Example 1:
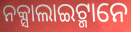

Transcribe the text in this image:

ନକ୍ସାଲାଇଟ୍ମାନେ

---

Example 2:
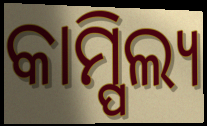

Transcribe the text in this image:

କାମ୍ପିଲ୍ୟ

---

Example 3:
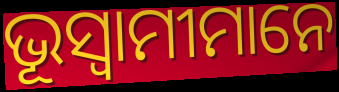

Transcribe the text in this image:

ଭୂସ୍ୱାମୀମାନେ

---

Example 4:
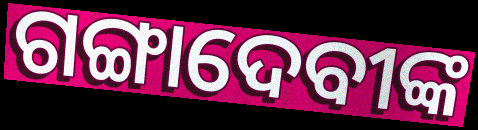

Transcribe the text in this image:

ଗଙ୍ଗାଦେବୀଙ୍କ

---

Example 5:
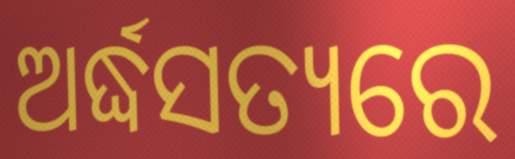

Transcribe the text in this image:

ଅର୍ଦ୍ଧସତ୍ୟରେ